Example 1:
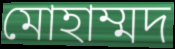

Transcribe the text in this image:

মোহাম্মদ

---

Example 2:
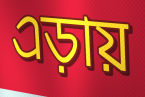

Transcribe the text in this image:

এড়ায়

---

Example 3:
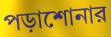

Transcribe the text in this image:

পড়াশোনার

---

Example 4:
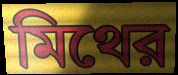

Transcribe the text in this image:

মিথের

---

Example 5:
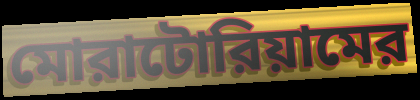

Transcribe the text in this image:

মোরাটোরিয়ামের